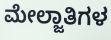
ಮೇಲ್ಜಾತಿಗಳ